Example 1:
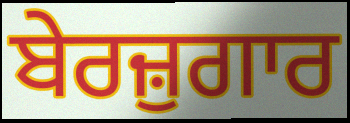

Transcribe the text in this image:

ਬੇਰਜ਼ੁਗਾਰ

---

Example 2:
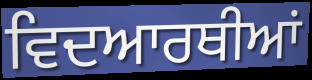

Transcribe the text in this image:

ਵਿਦਆਰਥੀਆਂ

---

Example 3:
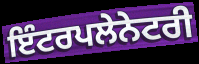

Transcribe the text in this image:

ਇੰਟਰਪਲੇਨੇਟਰੀ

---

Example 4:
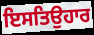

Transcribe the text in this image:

ਇਸਤਿਉਹਾਰ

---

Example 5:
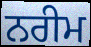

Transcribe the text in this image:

ਨਰੀਮ